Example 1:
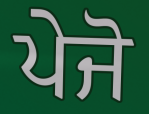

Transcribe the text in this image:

ਪੇਜੋ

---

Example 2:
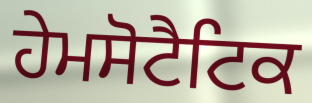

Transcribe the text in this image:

ਹੇਮਸੋਟੈਟਿਕ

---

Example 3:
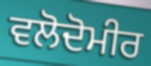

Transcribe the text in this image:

ਵਲੋਦੋਮੀਰ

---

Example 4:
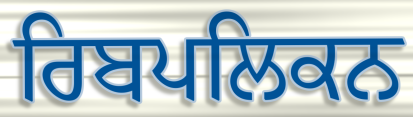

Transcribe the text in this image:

ਰਿਬਪਲਿਕਨ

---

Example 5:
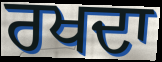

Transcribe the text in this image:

ਰਖਦਾ